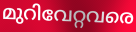
മുറിവേറ്റവരെ